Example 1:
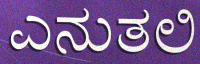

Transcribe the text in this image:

ಎನುತಲಿ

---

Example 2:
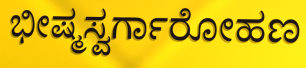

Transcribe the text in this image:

ಭೀಷ್ಮಸ್ವರ್ಗಾರೋಹಣ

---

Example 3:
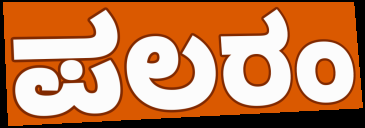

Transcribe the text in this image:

ಪಲರಂ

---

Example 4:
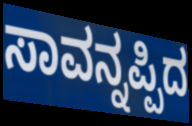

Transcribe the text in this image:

ಸಾವನ್ನಪ್ಪಿದ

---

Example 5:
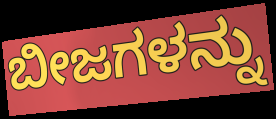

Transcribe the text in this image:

ಬೀಜಗಳನ್ನು